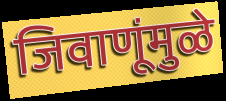
जिवाणूंमुळे